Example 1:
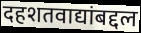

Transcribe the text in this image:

दहशतवाद्यांबद्दल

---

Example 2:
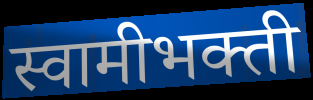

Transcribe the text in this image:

स्वामीभक्ती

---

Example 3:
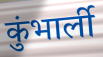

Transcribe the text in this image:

कुंभार्ली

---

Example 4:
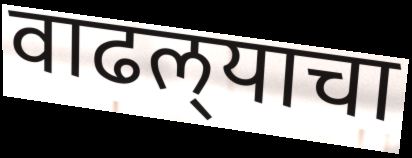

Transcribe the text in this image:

वाढल्याचा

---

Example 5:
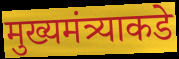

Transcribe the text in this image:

मुख्यमंत्र्याकडे